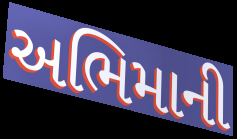
અભિમાની